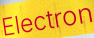
Electron